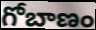
గోబాణం